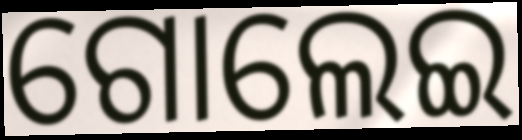
ଗୋଲେଇ